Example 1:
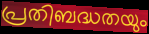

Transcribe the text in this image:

പ്രതിബദ്ധതയും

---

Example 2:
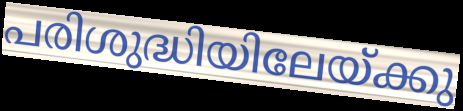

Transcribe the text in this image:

പരിശുദ്ധിയിലേയ്ക്കു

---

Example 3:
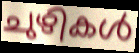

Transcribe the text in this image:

ചുഴികൾ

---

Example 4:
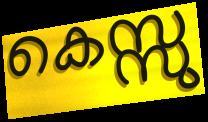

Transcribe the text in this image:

കെസ്സു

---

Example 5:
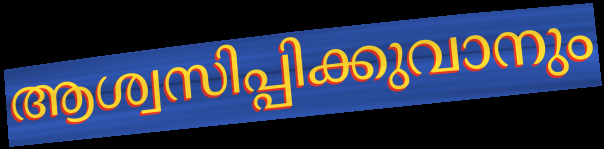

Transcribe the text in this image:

ആശ്വസിപ്പിക്കുവാനും